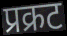
प्रक्रट